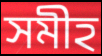
সমীহ